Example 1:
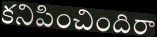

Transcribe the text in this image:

కనిపించిందిరా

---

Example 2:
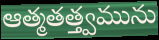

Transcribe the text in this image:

ఆత్మతత్త్వమును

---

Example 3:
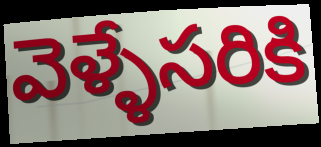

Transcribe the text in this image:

వెళ్ళేసరికి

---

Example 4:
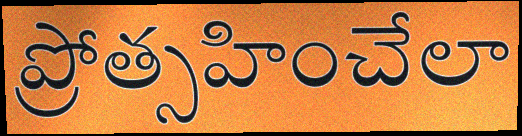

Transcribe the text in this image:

ప్రోత్సహించేలా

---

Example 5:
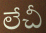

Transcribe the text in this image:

లేచీ